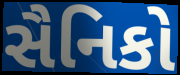
સૈનિકો